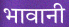
भावानी